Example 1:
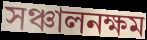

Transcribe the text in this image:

সঞ্চালনক্ষম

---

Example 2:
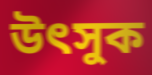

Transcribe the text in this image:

উৎসুক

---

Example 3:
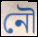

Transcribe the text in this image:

নৌ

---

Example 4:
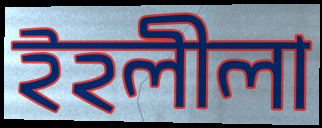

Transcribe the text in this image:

ইহলীলা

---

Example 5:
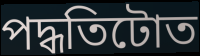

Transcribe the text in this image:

পদ্ধতিটোত